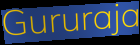
Gururaja